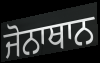
ਜੋਨਾਥਾਨ